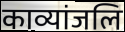
काव्यांजलि